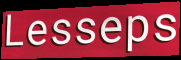
Lesseps